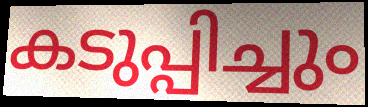
കടുപ്പിച്ചും